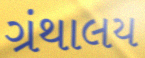
ગ્રંથાલય